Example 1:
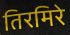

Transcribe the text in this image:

तिरमिरे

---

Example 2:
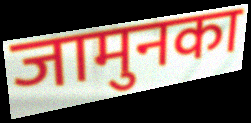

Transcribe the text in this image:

जामुनका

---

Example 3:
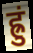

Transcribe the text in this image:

ह्रुं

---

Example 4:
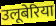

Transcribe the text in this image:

उलूबेरिया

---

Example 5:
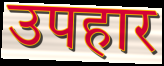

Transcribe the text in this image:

उपहार